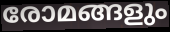
രോമങ്ങളും